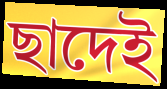
ছাদেই